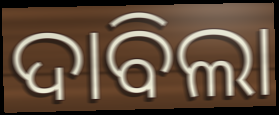
ଦାବିଲା